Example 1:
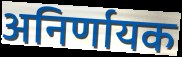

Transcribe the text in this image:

अनिर्णायक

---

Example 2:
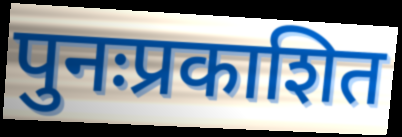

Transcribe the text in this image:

पुनःप्रकाशित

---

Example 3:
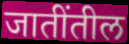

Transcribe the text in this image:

जातींतील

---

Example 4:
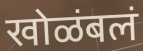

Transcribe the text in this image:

खोळंबलं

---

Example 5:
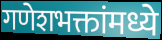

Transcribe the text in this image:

गणेशभक्तांमध्ये